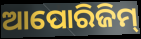
ଆପୋରିଜିମ୍